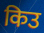
किउ